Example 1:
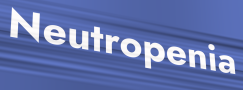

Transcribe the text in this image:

Neutropenia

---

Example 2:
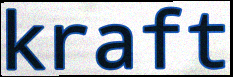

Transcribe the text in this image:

kraft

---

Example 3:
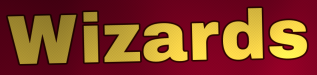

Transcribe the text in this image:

Wizards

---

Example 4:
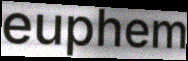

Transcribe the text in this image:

euphem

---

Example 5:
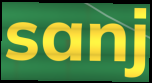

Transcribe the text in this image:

sanj